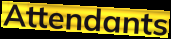
Attendants